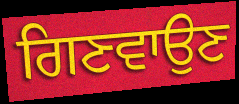
ਗਿਣਵਾਉਣ